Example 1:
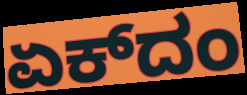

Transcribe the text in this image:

ಏಕ್‌ದಂ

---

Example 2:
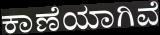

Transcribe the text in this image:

ಕಾಣೆಯಾಗಿವೆ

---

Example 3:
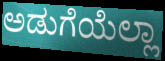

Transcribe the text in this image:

ಅಡುಗೆಯೆಲ್ಲಾ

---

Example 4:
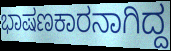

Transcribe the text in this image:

ಭಾಷಣಕಾರನಾಗಿದ್ದ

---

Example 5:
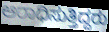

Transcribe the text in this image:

ಆರಾಧಿಸುತ್ತಿದ್ದರು